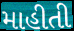
માહીતી